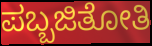
ಪಬ್ಬಜಿತೋತಿ